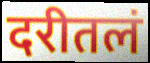
दरीतलं